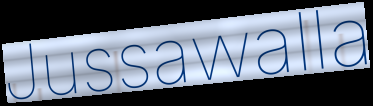
Jussawalla